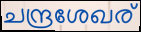
ചന്ദ്രശേഖര്